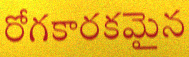
రోగకారకమైన